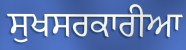
ਸੁਖਸਰਕਾਰੀਆ